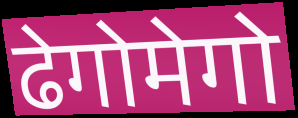
ढेगोमेगो